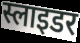
स्लाइडर